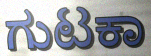
ಗುಟಕಾ